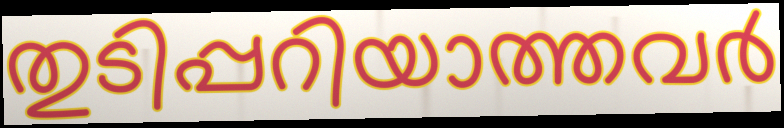
തുടിപ്പറിയാത്തവർ